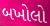
બખોલો